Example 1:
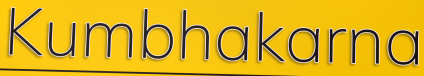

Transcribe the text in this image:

Kumbhakarna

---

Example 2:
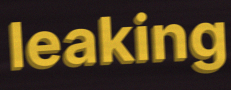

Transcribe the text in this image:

leaking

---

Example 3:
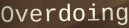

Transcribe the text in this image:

Overdoing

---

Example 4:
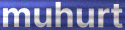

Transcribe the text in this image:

muhurt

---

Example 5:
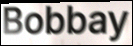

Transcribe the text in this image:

Bobbay